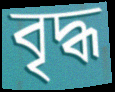
বৃদ্ধ